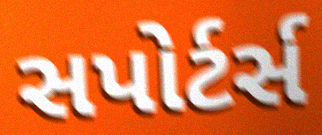
સપોર્ટર્સ